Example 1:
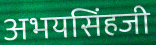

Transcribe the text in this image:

अभयसिंहजी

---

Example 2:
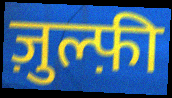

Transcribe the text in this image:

ज़ुल्फ़ी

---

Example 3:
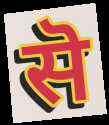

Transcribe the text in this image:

सॆ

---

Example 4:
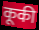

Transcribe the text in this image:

कूकी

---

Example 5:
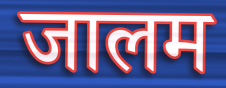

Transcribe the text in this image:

जालम